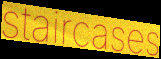
staircases